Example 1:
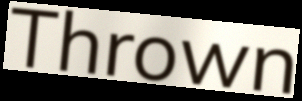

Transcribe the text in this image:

Thrown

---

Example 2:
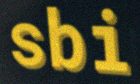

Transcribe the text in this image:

sbi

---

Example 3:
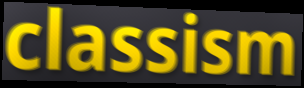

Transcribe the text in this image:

classism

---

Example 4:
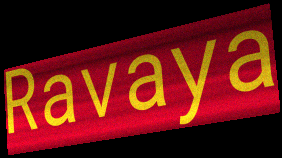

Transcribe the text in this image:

Ravaya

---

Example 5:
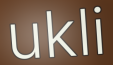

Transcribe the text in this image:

ukli